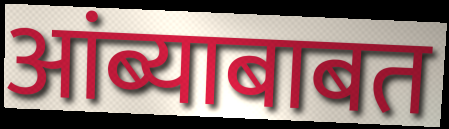
आंब्याबाबत